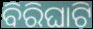
ବିରିଘାଟି